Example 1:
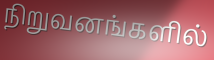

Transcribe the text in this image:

நிறுவனங்களில்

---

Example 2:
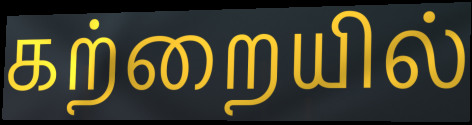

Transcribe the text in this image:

கற்றையில்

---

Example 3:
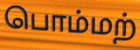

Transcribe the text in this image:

பொம்மற்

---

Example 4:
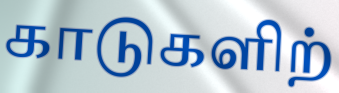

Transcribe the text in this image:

காடுகளிற்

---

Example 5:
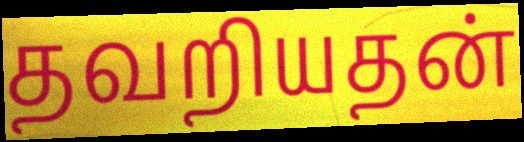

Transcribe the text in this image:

தவறியதன்